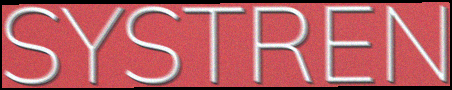
SYSTREN